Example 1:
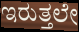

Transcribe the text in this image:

ಇರುತ್ತಲೇ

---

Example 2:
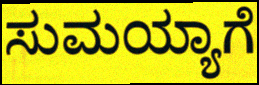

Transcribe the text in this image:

ಸುಮಯ್ಯಾಗೆ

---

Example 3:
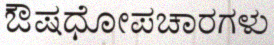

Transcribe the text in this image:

ಔಷಧೋಪಚಾರಗಳು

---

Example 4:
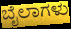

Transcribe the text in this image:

ಬೈಲಾಗಳು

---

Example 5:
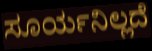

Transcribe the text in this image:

ಸೂರ್ಯನಿಲ್ಲದೆ